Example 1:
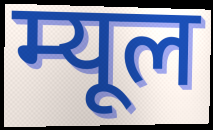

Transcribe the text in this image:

म्यूल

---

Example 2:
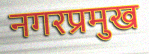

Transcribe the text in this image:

नगरप्रमुख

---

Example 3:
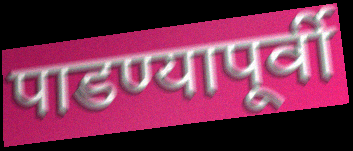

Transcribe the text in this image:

पाडण्यापूर्वी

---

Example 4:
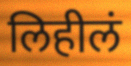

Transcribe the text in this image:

लिहीलं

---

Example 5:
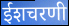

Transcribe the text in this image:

ईशचरणी